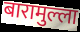
बारामुल्‍ला